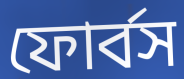
ফোর্বস